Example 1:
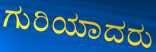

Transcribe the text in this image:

ಗುರಿಯಾದರು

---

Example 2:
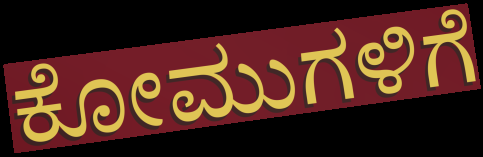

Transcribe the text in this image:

ಕೋಮುಗಳಿಗೆ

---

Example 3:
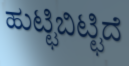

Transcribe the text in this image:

ಹುಟ್ಟಿಬಿಟ್ಟಿದೆ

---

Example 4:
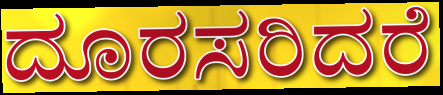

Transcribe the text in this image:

ದೂರಸರಿದರೆ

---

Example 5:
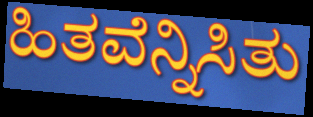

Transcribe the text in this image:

ಹಿತವೆನ್ನಿಸಿತು